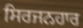
ਸਿਰਜਨਹਾਰ